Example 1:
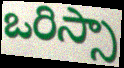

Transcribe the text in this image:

ఒరిస్సా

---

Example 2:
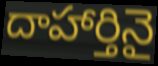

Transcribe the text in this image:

దాహార్తినై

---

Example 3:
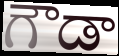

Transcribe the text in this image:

గౌడా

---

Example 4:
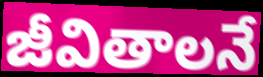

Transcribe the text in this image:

జీవితాలనే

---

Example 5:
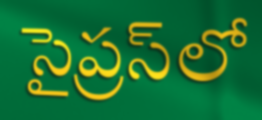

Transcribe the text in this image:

సైప్రస్‌లో